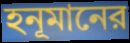
হনূমানের